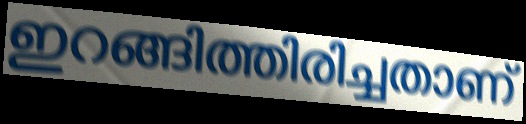
ഇറങ്ങിത്തിരിച്ചതാണ്